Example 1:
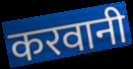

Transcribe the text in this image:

करवानी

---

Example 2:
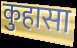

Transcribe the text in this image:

कुहासा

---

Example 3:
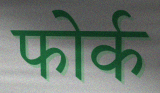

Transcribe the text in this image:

फोर्क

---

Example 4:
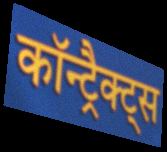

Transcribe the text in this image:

कॉन्‍ट्रैक्‍ट्स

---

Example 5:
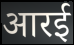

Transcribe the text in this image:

आरई